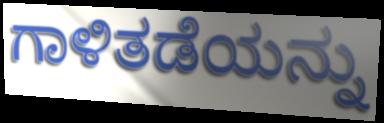
ಗಾಳಿತಡೆಯನ್ನು